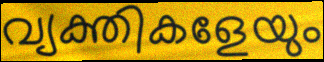
വ്യക്തികളേയും